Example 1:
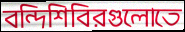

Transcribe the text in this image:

বন্দিশিবিরগুলোতে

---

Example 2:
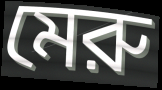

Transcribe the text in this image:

মেরু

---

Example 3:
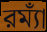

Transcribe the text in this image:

রম্যাঁ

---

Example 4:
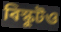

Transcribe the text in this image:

বিস্কুটও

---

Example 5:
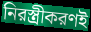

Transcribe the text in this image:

নিরস্ত্রীকরণই